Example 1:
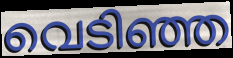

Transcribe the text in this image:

വെടിഞ്ഞ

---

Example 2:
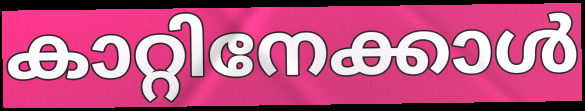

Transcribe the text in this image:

കാറ്റിനേക്കാൾ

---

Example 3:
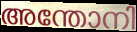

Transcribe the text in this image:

അന്തോനി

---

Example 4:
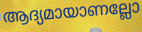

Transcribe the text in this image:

ആദ്യമായാണല്ലോ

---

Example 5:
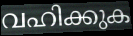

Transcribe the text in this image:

വഹിക്കുക